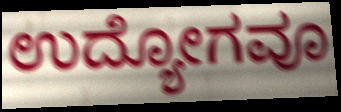
ಉದ್ಯೋಗವೂ